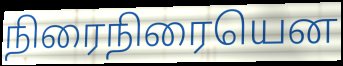
நிரைநிரையென